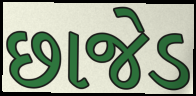
છાજેડ